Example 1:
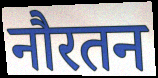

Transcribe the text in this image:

नौरतन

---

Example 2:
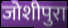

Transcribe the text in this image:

जोशीपुरा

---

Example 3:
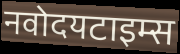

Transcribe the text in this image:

नवोदयटाइम्स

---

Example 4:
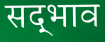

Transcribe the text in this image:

सद्‍भाव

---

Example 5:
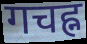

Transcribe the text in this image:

गचह्न